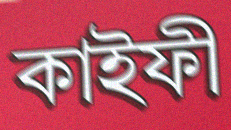
কাইফী